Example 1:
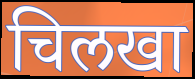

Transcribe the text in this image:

चिलखा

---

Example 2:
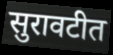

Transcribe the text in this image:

सुरावटीत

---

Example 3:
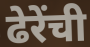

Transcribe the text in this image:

ढेरेंची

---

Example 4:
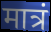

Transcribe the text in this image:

मात्रं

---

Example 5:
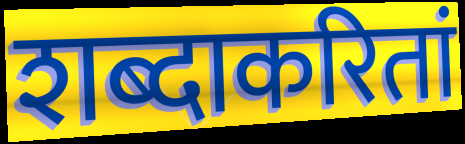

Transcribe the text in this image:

शब्दाकरितां